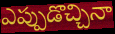
ఎప్పుడొచ్చినా